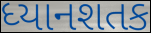
ધ્યાનશતક